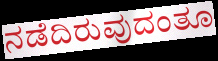
ನಡೆದಿರುವುದಂತೂ